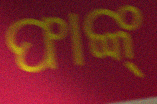
ଫାଙ୍କ୍